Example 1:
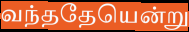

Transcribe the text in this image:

வந்ததேயென்று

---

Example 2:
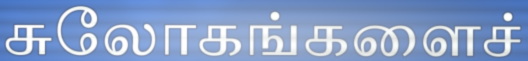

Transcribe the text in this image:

சுலோகங்களைச்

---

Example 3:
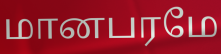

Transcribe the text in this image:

மானபரமே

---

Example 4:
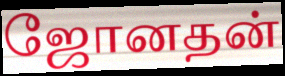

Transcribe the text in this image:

ஜோனதன்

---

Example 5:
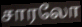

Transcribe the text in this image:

சாரலோ